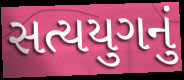
સત્યયુગનું